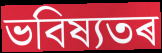
ভবিষ্যতৰ